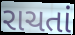
રાચતાં